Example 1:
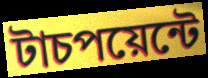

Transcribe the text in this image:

টাচপয়েন্টে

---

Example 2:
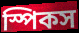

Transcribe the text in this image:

স্পিকস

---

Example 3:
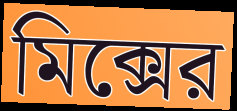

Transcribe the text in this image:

মিক্সের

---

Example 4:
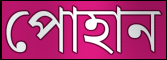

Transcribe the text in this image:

পোহান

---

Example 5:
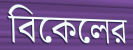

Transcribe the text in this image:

বিকেলের